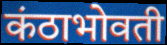
कंठाभोवती